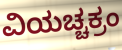
ವಿಯಚ್ಚಕ್ರಂ